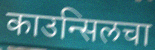
काउन्सिलचा